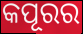
କପୂରର